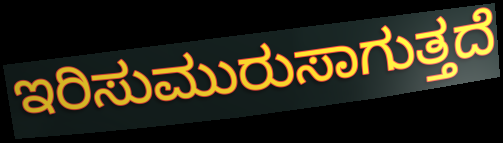
ಇರಿಸುಮುರುಸಾಗುತ್ತದೆ